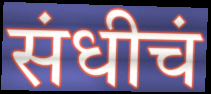
संधीचं